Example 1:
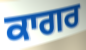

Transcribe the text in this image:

ਕਾਗਰ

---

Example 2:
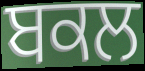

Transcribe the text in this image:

ਬਕਲ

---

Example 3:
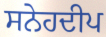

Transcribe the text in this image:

ਸਨੇਹਦੀਪ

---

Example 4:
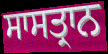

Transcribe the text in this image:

ਸਾਸਤ੍ਰਾਨ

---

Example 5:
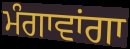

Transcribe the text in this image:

ਮੰਗਾਵਾਂਗਾ